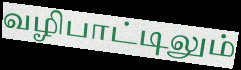
வழிபாட்டிலும்